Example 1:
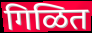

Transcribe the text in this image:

गिळित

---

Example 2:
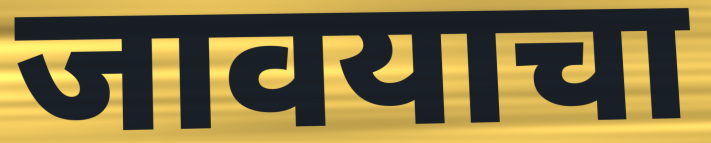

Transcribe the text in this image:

जावयाचा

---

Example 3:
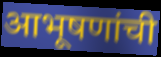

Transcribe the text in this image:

आभूषणांची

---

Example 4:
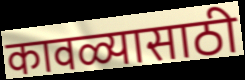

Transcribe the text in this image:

कावळ्यासाठी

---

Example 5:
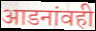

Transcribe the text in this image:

आडनांवही